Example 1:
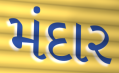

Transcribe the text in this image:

મંદાર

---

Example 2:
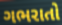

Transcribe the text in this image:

ગભરાતો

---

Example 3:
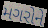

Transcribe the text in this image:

મગરોને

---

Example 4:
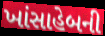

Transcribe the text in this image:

ખાંસાહેબની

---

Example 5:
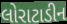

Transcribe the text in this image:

લોરાટાડીન